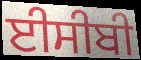
ਈਸੀਬੀ